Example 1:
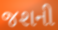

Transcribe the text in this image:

જશની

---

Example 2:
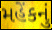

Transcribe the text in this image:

મહેંકનું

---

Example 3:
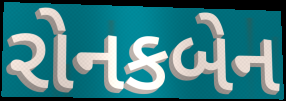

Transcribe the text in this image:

રોનકબેન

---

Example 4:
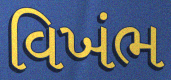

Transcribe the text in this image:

વિખંભ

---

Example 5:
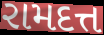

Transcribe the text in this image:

રામદત્ત